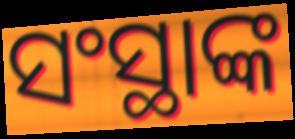
ସଂସ୍ଥାଙ୍କ